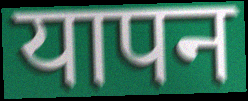
यापन